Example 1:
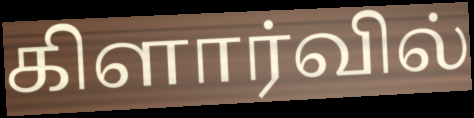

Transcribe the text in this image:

கிளார்வில்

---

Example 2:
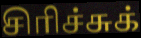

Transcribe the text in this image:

சிரிச்சுக்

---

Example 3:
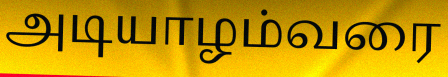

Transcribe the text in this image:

அடியாழம்வரை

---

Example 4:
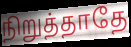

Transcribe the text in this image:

நிறுத்தாதே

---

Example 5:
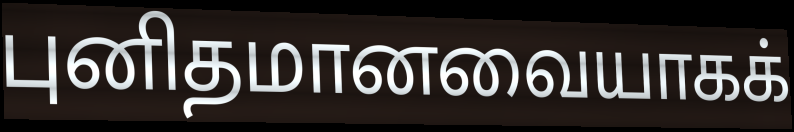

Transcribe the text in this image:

புனிதமானவையாகக்